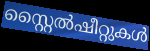
സ്റ്റൈൽഷീറ്റുകൾ